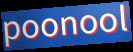
poonool